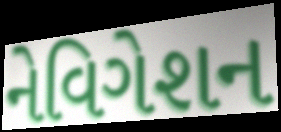
નેવિગેશન